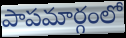
పాపమార్గంలో